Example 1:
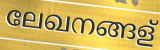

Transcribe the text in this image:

ലേഖനങ്ങള്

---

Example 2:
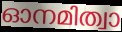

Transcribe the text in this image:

ഓനമിത്വാ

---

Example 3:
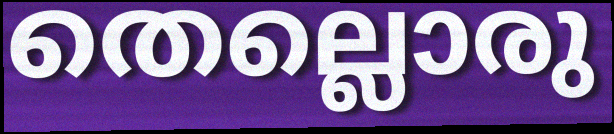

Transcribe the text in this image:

തെല്ലൊരു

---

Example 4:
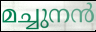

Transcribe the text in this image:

മച്ചുനൻ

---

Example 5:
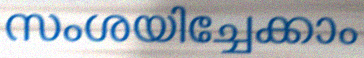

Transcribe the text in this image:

സംശയിച്ചേക്കാം